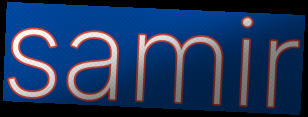
samir